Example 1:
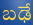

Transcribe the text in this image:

బఢే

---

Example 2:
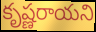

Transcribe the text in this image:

కృష్ణరాయని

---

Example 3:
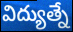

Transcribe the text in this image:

విద్యుత్నే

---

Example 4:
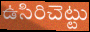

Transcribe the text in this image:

ఉసిరిచెట్టు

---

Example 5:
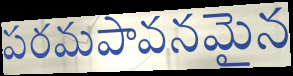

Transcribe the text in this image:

పరమపావనమైన